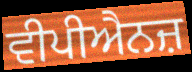
ਵੀਪੀਐਨਜ਼